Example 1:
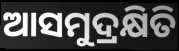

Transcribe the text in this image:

ଆସମୁଦ୍ରକ୍ଷିତି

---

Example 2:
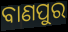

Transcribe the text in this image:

ବାଣପୁର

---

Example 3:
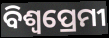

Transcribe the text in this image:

ବିଶ୍ବପ୍ରେମୀ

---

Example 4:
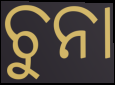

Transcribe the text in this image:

ଚୁନା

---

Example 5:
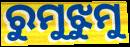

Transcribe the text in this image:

ରୁମୁଝୁମୁ